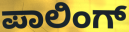
ಪಾಲಿಂಗ್